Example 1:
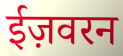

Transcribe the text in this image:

ईज़वरन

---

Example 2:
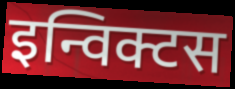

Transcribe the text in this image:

इन्विक्टस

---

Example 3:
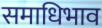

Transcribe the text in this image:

समाधिभाव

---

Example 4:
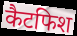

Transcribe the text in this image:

कैटफिश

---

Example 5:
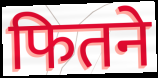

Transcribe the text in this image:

फितने